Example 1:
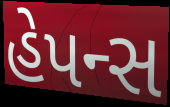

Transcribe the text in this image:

હેપન્સ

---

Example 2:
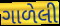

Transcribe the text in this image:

ગાળેલી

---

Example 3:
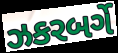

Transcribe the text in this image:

ઝકરબર્ગે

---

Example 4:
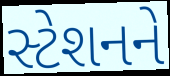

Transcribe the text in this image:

સ્ટેશનને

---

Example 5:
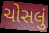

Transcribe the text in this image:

ચોસલું